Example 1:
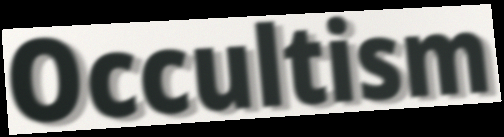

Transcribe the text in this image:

Occultism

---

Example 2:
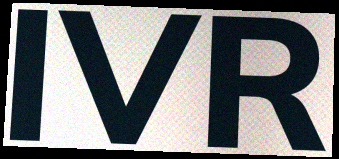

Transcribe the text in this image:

IVR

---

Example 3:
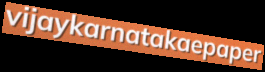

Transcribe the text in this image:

vijaykarnatakaepaper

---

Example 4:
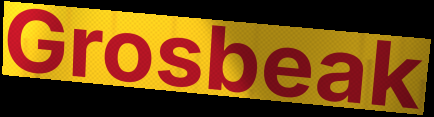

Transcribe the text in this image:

Grosbeak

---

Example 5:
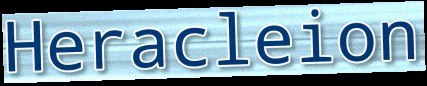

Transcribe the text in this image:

Heracleion